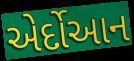
એર્દોઆન